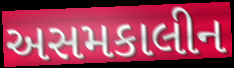
અસમકાલીન